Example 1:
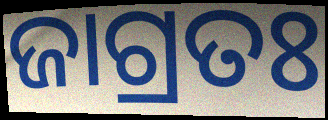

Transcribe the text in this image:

ଜାଗ୍ରତଃ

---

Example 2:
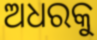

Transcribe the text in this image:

ଅଧରକୁ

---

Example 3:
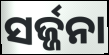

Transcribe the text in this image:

ସର୍ଜ୍ଜନା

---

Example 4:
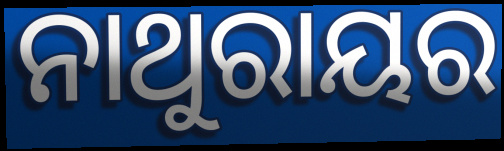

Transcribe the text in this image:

ନାଥୁରାୟର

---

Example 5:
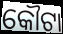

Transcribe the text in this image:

କୌଟା